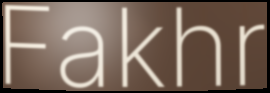
Fakhr